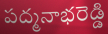
పద్మనాభరెడ్డి